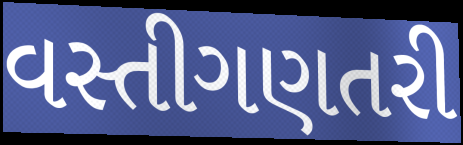
વસ્તીગણતરી